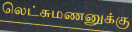
லெட்சுமணனுக்கு